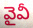
వైవీ